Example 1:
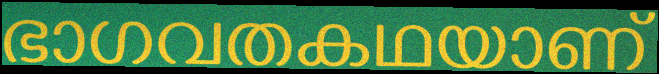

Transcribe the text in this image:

ഭാഗവതകഥയാണ്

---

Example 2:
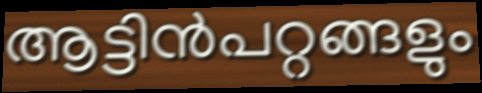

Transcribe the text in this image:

ആട്ടിൻപറ്റങ്ങളും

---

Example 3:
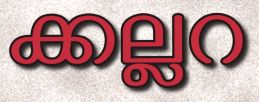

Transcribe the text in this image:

ക്കല്ലറ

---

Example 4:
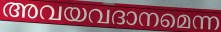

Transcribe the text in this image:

അവയവദാനമെന്ന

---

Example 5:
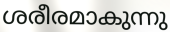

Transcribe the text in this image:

ശരീരമാകുന്നു